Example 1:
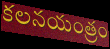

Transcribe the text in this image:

కలనయంత్రం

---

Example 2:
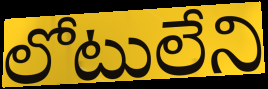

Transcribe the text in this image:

లోటులేని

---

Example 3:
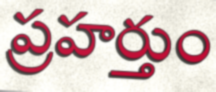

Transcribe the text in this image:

ప్రహర్తుం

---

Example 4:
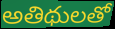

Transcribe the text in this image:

అతిథులతో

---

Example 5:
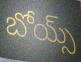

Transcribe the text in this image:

బోయ్స్